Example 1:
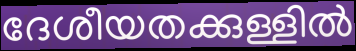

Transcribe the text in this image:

ദേശീയതക്കുള്ളിൽ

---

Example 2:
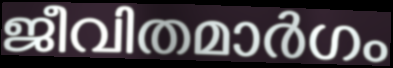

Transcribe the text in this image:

ജീവിതമാർഗം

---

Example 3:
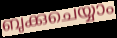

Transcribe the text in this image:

ബുക്കുചെയ്യാം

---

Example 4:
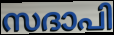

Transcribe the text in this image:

സദാപി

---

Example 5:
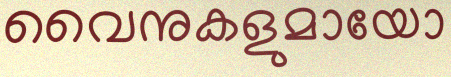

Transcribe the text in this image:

വൈനുകളുമായോ